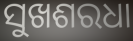
ସୁଖଶରଧା